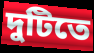
দুটিতে